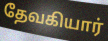
தேவகியார்